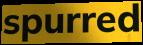
spurred